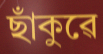
ছাঁকুৱে